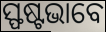
ସ୍ଫଷ୍ଟଭାବେ